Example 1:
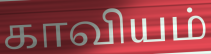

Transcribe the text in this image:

காவியம்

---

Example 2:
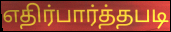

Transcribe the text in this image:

எதிர்பார்த்தபடி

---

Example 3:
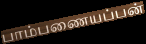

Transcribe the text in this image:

பாம்பணையப்பன்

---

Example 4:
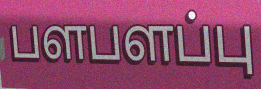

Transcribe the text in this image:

பளபளப்பு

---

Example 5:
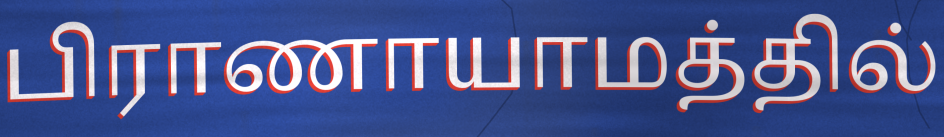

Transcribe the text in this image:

பிராணாயாமத்தில்